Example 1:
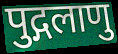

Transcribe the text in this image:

पुद्गलाणु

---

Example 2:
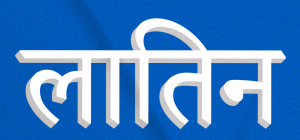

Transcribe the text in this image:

लातिन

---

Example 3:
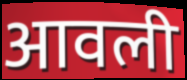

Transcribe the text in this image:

आवली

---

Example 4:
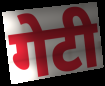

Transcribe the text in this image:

गेटी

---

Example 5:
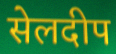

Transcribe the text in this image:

सेलदीप